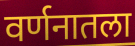
वर्णनातला